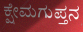
ಕ್ಷೇಮಗುಪ್ತನ